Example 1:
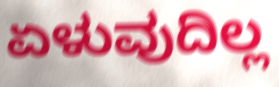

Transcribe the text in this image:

ಏಳುವುದಿಲ್ಲ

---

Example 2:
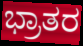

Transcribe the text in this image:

ಭ್ರಾತರ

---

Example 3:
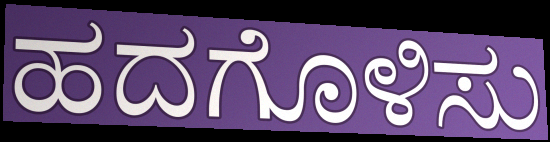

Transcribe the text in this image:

ಹದಗೊಳಿಸು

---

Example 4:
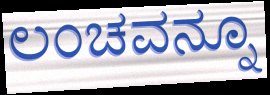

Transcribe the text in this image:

ಲಂಚವನ್ನೂ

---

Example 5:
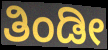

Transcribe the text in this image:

ತಿಂಡೀ